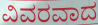
ವಿವರವಾದ